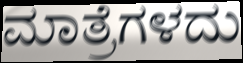
ಮಾತ್ರೆಗಳದು